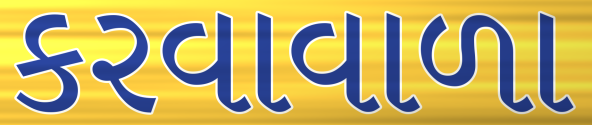
કરવાવાળા